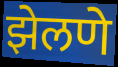
झेलणे